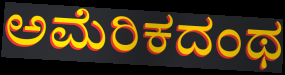
ಅಮೆರಿಕದಂಥ